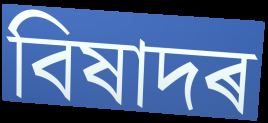
বিষাদৰ